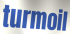
turmoil